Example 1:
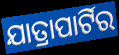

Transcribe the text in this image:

ଯାତ୍ରାପାର୍ଟିର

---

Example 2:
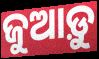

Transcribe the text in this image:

ଜୁଆଡ଼ୁ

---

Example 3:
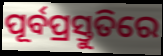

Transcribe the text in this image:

ପୂର୍ବପ୍ରସ୍ତୁତିରେ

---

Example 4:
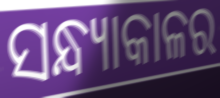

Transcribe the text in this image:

ସନ୍ଧ୍ୟାକାଳର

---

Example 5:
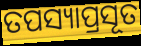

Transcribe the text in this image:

ତପସ୍ୟାପ୍ରସୂତ